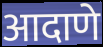
आदाणे